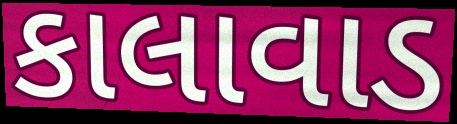
કાલાવાડ